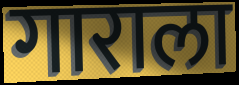
गाराला